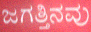
ಜಗತ್ತಿನವು